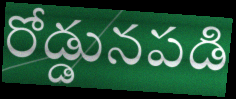
రోడ్డునపడి